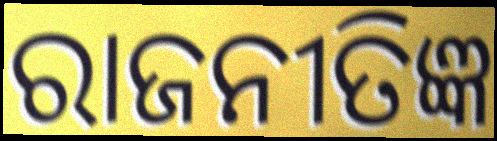
ରାଜନୀତିଜ୍ଞ